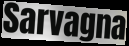
Sarvagna